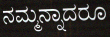
ನಮ್ಮನ್ನಾದರೂ